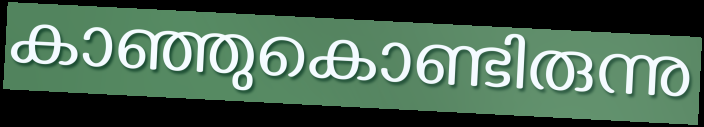
കാഞ്ഞുകൊണ്ടിരുന്നു